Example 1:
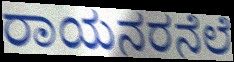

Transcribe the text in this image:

ರಾಯನರನೆಲೆ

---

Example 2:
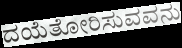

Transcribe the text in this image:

ದಯೆತೋರಿಸುವವನು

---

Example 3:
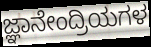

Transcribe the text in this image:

ಜ್ಞಾನೇಂದ್ರಿಯಗಳ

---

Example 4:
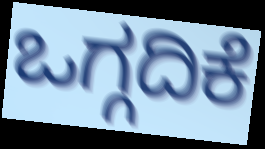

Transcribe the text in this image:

ಒಗ್ಗದಿಕೆ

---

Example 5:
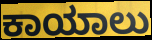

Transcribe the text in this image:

ಕಾಯಾಲು